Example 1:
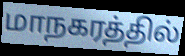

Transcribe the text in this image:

மாநகரத்தில்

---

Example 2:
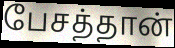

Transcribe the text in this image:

பேசத்தான்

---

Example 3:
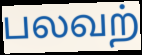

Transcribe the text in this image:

பலவற்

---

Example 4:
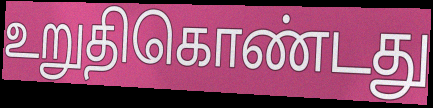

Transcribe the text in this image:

உறுதிகொண்டது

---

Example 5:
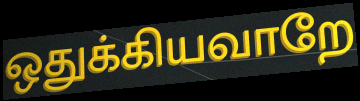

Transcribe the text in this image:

ஒதுக்கியவாறே